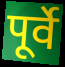
पूर्वे